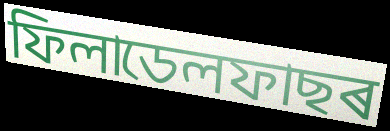
ফিলাডেলফাছৰ